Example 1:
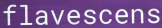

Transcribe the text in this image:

flavescens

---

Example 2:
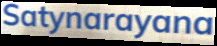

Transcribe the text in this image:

Satynarayana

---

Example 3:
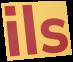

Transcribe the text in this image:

ils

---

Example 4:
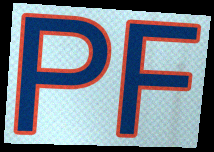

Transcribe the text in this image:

PF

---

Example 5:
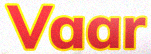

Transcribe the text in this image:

Vaar